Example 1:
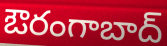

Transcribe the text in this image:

ఔరంగాబాద్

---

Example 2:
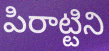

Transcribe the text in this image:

పిరాట్టిని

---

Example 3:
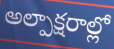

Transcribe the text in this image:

అల్పాక్షరాల్లో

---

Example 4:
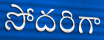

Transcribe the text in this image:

సోదరిగా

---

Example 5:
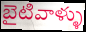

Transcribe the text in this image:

బైటివాళ్ళు